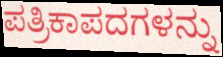
ಪತ್ರಿಕಾಪದಗಳನ್ನು